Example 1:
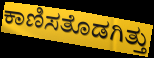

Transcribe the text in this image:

ಕಾಣಿಸತೊಡಗಿತ್ತು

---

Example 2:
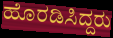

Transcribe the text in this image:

ಹೊರಡಿಸಿದ್ದರು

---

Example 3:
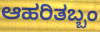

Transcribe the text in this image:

ಆಹರಿತಬ್ಬಂ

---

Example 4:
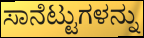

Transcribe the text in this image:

ಸಾನೆಟ್ಟುಗಳನ್ನು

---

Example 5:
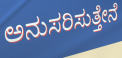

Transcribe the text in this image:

ಅನುಸರಿಸುತ್ತೇನೆ